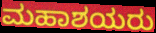
ಮಹಾಶಯರು